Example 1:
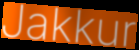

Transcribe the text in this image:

Jakkur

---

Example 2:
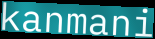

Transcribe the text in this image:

kanmani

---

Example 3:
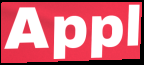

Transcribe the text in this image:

Appl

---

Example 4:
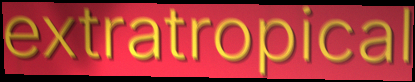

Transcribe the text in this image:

extratropical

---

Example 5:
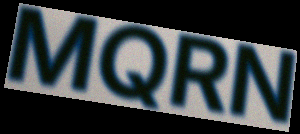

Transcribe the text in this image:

MQRN